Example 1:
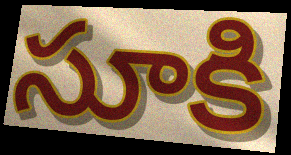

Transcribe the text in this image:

సూకి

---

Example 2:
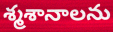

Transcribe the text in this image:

శ్మశానాలను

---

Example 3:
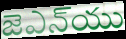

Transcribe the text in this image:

జెఎన్‌యు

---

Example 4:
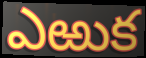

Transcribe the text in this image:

ఎఱుక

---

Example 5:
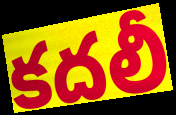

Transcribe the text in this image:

కదలీ